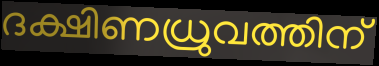
ദക്ഷിണധ്രുവത്തിന്